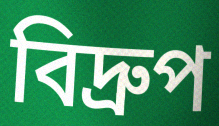
বিদ্রুপ